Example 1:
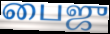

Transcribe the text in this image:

பைஜு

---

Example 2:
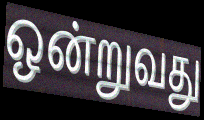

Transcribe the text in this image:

ஒன்றுவது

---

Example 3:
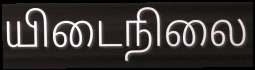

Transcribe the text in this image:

யிடைநிலை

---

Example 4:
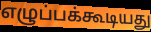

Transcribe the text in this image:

எழுப்பக்கூடியது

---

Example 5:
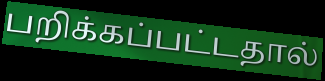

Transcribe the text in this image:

பறிக்கப்பட்டதால்